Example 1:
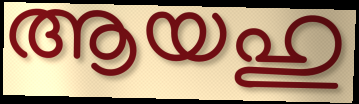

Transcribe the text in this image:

ആയഹു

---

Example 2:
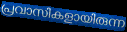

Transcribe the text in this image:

പ്രവാസികളായിരുന്ന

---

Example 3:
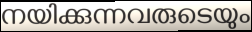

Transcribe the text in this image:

നയിക്കുന്നവരുടെയും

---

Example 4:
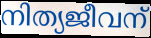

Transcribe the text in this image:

നിത്യജീവന്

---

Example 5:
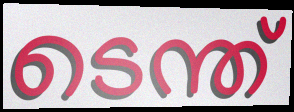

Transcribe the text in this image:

ടെന്ത്